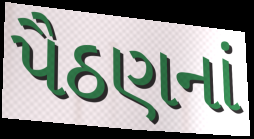
પૈઠણનાં